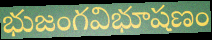
భుజంగవిభూషణం